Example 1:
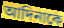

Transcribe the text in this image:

আদিনাকে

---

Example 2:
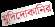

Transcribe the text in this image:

মুদিদোকানির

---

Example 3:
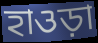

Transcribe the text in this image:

হাওড়া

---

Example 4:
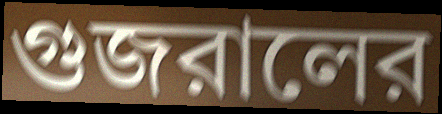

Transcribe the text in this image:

গুজরালের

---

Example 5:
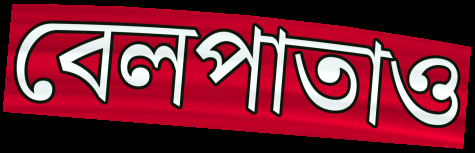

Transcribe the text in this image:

বেলপাতাও